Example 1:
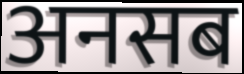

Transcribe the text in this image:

अनसब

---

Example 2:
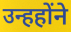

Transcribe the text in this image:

उन्हहोंने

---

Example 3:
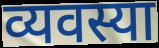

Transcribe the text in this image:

व्यवस्या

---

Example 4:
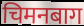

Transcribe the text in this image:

चिमनबाग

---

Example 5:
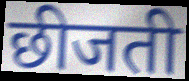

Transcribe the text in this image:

छीजती